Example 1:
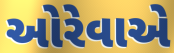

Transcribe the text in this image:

ઓરેવાએ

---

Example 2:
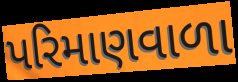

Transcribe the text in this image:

પરિમાણવાળા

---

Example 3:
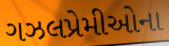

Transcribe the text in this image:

ગઝલપ્રેમીઓના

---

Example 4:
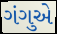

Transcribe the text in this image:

ગંગુએ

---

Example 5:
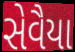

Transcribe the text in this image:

સેવૈયા